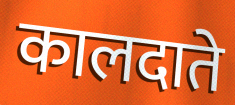
कालदाते